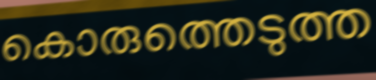
കൊരുത്തെടുത്ത